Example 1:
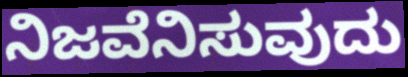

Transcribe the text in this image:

ನಿಜವೆನಿಸುವುದು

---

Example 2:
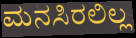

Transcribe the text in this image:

ಮನಸಿರಲಿಲ್ಲ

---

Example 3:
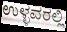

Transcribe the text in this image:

ಉಳ್ಳವರಲ್ಲಿ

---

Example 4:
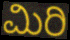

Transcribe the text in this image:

ಮಿರಿ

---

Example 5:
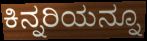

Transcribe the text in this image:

ಕಿನ್ನರಿಯನ್ನೂ